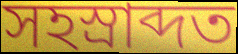
সহস্ৰাব্দত